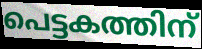
പെട്ടകത്തിന്